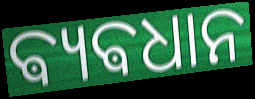
ଵ୍ୟଵଧାନ